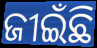
ଜୀଇଁଛି